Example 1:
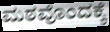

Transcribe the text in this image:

ಮಠವೊಂದಕ್ಕೆ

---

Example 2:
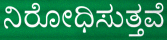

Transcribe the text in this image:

ನಿರೋಧಿಸುತ್ತವೆ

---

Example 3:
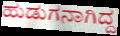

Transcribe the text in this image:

ಹುಡುಗನಾಗಿದ್ದ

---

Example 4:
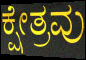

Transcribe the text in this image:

ಕ್ಷೇತ್ರವು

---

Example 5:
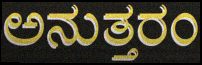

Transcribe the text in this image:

ಅನುತ್ತರಂ